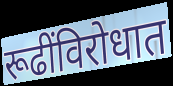
रूढींविरोधात